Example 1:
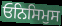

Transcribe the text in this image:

ਓਨਿਸਿਮੁਸ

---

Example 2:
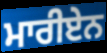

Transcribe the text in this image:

ਮਾਰੀਏਨ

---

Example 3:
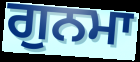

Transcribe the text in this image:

ਗੁਨਮਾ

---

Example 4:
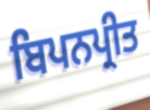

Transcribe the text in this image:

ਬਿਪਨਪ੍ਰੀਤ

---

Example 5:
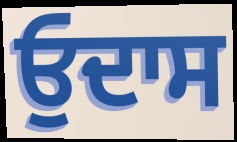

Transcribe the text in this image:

ਓੁਦਾਸ